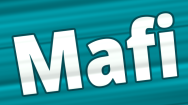
Mafi